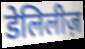
डेलिलीज़